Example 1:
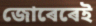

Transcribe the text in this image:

জোৰেৰেই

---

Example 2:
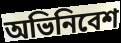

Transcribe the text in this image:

অভিনিবেশ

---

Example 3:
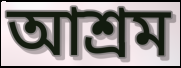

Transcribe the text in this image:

আশ্ৰম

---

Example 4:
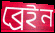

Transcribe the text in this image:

ব্ৰেইন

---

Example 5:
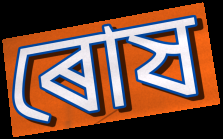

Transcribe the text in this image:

ৰোষ